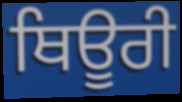
ਥਿਊਰੀ